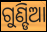
ଗୁଣ୍ଡିଆ